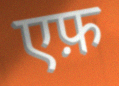
एफ़